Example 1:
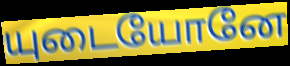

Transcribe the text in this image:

யுடையோனே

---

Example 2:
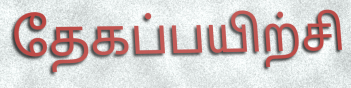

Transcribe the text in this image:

தேகப்பயிற்சி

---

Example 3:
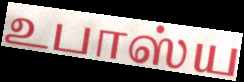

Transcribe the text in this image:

உபாஸ்ய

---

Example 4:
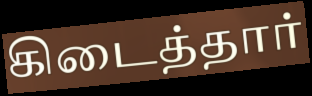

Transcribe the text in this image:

கிடைத்தார்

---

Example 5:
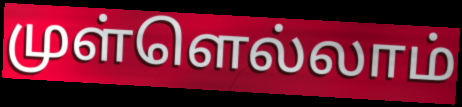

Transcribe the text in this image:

முள்ளெல்லாம்